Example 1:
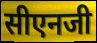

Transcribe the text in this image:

सीएनजी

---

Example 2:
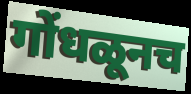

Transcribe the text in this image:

गोंधळूनच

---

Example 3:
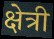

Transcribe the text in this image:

क्षेत्री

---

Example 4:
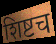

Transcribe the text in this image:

शिष्टच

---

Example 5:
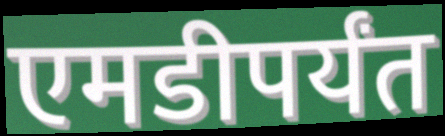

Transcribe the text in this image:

एमडीपर्यंत